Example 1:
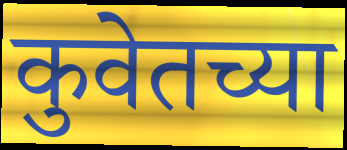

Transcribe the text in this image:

कुवेतच्या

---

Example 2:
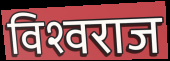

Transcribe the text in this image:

विश्वराज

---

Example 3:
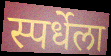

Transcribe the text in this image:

स्पर्धेला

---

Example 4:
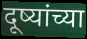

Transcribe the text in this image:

दूष्यांच्या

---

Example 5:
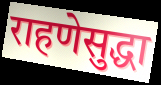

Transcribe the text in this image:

राहणेसुद्धा